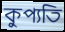
কুপ্যতি